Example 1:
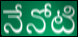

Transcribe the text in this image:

నేనోటి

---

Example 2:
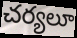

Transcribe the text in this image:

చర్యలూ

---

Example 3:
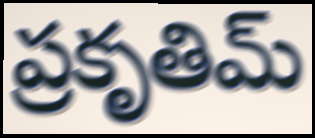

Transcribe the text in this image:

ప్రకృతిమ్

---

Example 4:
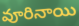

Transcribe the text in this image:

వూరినాయి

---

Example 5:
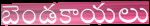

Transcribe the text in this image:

బెండకాయలు